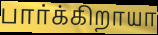
பார்க்கிறாயா